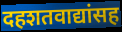
दहशतवाद्यांसह